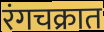
रंगचक्रात